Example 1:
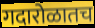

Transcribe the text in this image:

गदारोळातच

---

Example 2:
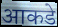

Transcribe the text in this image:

आकडे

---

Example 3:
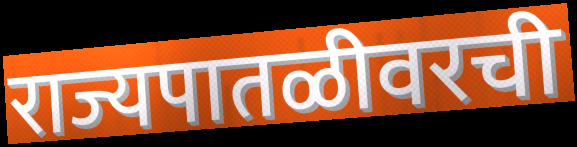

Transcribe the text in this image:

राज्यपातळीवरची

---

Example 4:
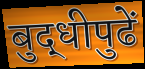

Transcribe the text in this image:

बुद्धीपुढें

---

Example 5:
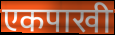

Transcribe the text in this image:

एकपाखी